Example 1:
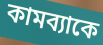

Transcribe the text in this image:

কামব্যাকে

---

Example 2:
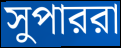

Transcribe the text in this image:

সুপাররা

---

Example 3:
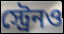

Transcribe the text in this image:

স্ট্রেনও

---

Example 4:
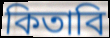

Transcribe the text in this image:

কিতাবি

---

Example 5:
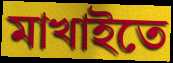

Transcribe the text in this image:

মাখাইতে